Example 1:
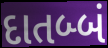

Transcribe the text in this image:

દાતબ્બં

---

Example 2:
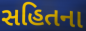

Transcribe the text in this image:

સહિતના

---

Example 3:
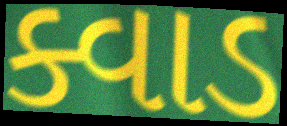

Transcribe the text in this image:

ક્વાડ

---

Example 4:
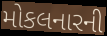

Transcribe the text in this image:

મોકલનારની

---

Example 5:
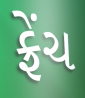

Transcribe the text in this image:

ફ્રેંચ